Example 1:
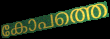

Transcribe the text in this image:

കോപത്തെ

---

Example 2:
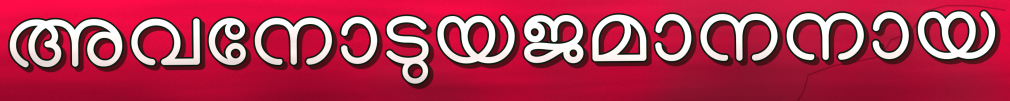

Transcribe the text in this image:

അവനോടുയജമാനനായ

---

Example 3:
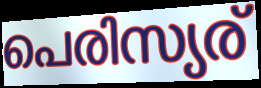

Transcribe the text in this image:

പെരിസ്യര്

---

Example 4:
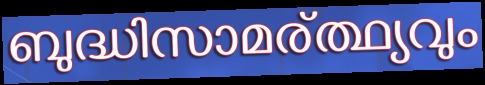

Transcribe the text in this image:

ബുദ്ധിസാമര്ത്ഥ്യവും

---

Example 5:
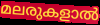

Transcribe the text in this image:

മലരുകളാൽ